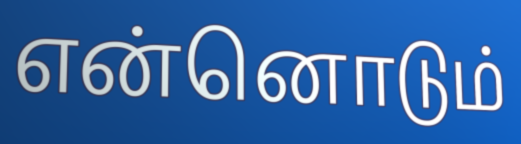
என்னொடும்